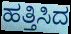
ಹತ್ತಿಸಿದ